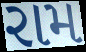
રામ